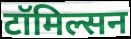
टॉमिल्सन